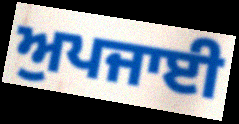
ਅੁਪਜਾਈ